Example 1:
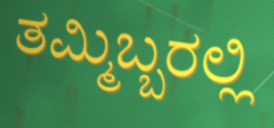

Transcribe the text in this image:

ತಮ್ಮಿಬ್ಬರಲ್ಲಿ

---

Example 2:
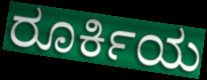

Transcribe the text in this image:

ರೂರ್ಕಿಯ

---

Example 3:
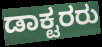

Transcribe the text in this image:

ಡಾಕ್ಟರರು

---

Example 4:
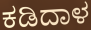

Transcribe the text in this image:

ಕಡಿದಾಳ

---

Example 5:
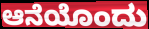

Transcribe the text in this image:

ಆನೆಯೊಂದು